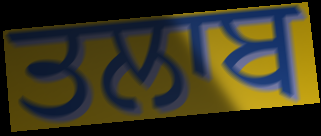
ਤਲਾਬ